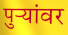
पुऱ्यांवर